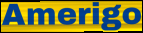
Amerigo